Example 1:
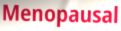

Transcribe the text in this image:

Menopausal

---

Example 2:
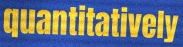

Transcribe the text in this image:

quantitatively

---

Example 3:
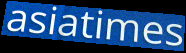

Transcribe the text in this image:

asiatimes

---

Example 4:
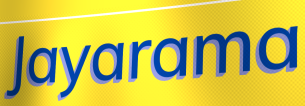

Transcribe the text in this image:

Jayarama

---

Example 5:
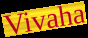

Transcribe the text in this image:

Vivaha